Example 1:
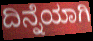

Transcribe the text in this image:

ದಿನ್ನೆಯಾಗಿ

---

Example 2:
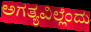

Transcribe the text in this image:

ಅಗತ್ಯವಿಲ್ಲೆಂದು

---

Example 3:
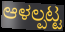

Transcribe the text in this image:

ಆಳಲ್ಪಟ್ಟ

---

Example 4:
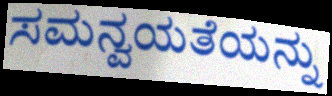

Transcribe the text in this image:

ಸಮನ್ವಯತೆಯನ್ನು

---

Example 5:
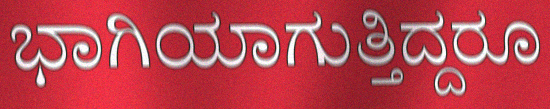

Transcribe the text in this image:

ಭಾಗಿಯಾಗುತ್ತಿದ್ದರೂ